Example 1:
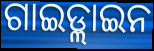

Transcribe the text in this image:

ଗାଇଡ୍ଲାଇନ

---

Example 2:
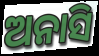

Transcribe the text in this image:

ଅନାସି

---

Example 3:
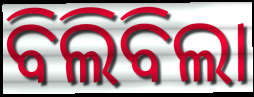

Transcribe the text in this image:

ବିଲିବିଲା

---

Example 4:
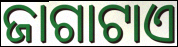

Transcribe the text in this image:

ଜାଗାଟାଏ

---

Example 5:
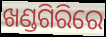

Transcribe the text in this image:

ଖଣ୍ଡଗିରିରେ